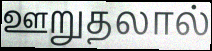
ஊறுதலால்